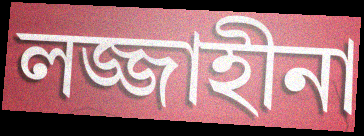
লজ্জাহীনা